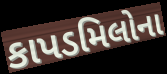
કાપડમિલોના